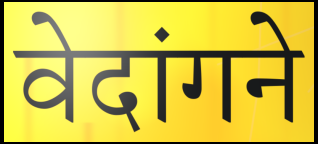
वेदांगने